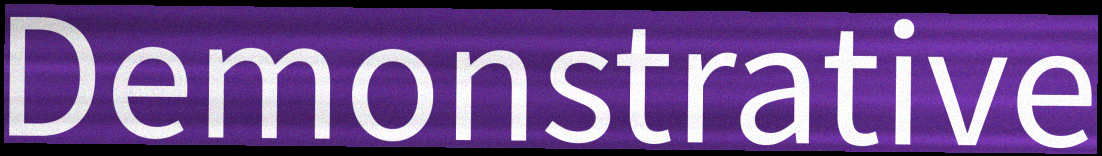
Demonstrative